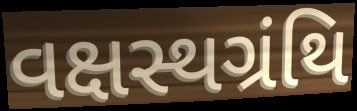
વક્ષસ્થગ્રંથિ